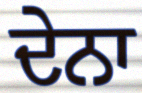
ਦੇਨਾ